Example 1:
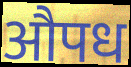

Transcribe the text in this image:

औपध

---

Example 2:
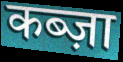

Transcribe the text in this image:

कब्ज़ा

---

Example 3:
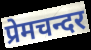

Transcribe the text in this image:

प्रेमचन्दर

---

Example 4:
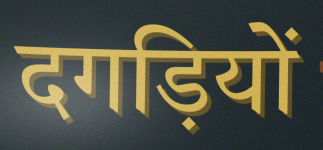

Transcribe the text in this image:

दगड़ियों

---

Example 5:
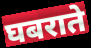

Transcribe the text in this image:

घबराते